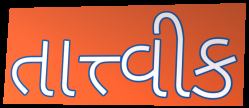
તાત્ત્વીક